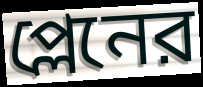
প্লেনের